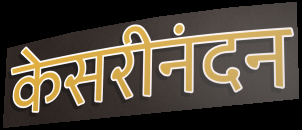
केसरीनंदन